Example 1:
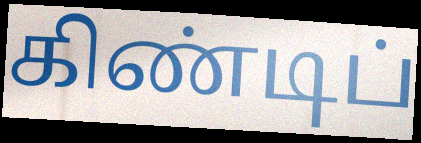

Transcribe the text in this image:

கிண்டிப்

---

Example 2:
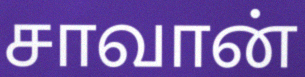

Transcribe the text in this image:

சாவான்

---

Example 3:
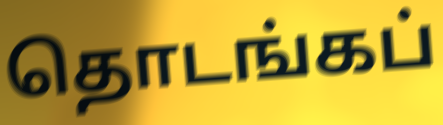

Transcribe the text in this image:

தொடங்கப்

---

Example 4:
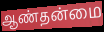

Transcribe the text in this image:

ஆண்தன்மை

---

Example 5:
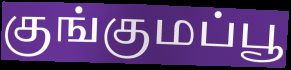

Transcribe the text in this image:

குங்குமப்பூ